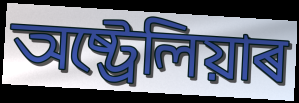
অষ্ট্ৰেলিয়াৰ